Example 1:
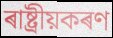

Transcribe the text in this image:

ৰাষ্ট্ৰীয়কৰণ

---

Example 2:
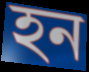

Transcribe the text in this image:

হন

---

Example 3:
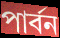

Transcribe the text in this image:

পাৰ্বন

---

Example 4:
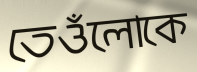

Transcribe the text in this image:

তেওঁলোকে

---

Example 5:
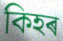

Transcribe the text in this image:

কিহৰ